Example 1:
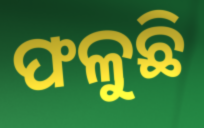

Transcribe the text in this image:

ଫଳୁଛି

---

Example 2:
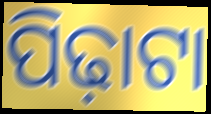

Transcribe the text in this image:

ପିଢ଼ାଟା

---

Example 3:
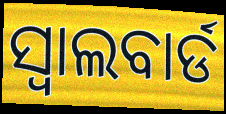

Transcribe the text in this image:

ସ୍ୱାଲବାର୍ଡ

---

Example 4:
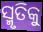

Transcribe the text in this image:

ସ୍ମୃତିକୁ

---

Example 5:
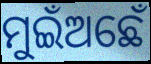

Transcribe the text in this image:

ମୁଇଁଅଛେଁ